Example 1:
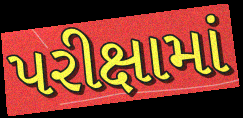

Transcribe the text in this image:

પરીક્ષામાં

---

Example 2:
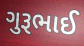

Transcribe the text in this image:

ગુરૂભાઈ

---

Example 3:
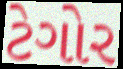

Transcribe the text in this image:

ટેગોર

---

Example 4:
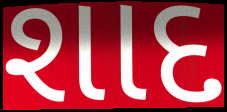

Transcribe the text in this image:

શાદ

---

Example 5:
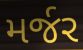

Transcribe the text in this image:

મર્જર